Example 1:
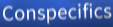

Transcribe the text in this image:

Conspecifics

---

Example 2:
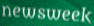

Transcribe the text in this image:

newsweek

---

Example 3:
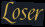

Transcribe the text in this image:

Loser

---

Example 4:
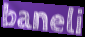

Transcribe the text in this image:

baneli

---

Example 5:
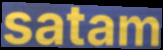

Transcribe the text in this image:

satam